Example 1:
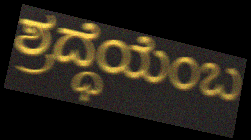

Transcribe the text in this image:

ಶ್ರದ್ಧೆಯೆಂಬ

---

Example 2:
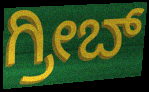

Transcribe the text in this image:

ಗ್ರೀಬ್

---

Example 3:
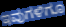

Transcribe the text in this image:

ಇವುಗಳಿಗೂ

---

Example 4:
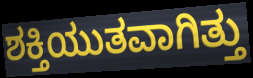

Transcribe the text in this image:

ಶಕ್ತಿಯುತವಾಗಿತ್ತು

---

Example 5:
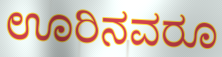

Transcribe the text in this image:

ಊರಿನವರೂ